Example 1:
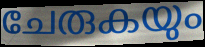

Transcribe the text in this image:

ചേരുകയും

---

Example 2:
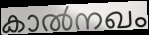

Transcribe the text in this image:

കാൽനഖം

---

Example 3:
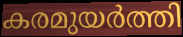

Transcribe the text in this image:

കരമുയർത്തി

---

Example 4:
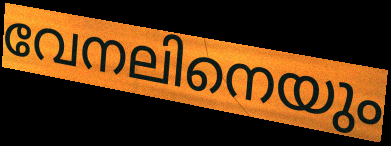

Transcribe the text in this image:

വേനലിനെയും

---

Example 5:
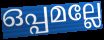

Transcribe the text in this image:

ഒപ്പമല്ലേ